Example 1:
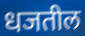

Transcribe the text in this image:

धजतील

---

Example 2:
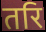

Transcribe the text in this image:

तरि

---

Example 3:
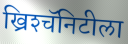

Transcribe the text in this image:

ख्रिश्चॅनिटीला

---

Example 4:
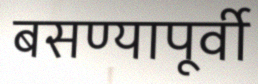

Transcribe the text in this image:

बसण्यापूर्वी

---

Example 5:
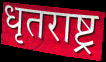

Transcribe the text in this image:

धृतराष्ट्र